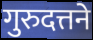
गुरुदत्तने